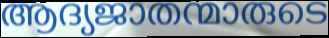
ആദ്യജാതന്മാരുടെ